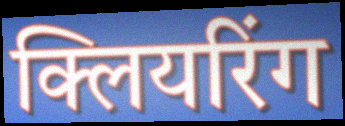
क्लियरिंग